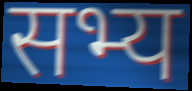
सभ्य